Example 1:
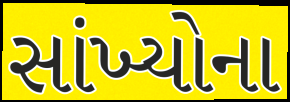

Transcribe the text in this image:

સાંખ્યોના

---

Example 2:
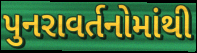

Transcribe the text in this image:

પુનરાવર્તનોમાંથી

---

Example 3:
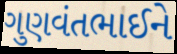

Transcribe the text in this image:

ગુણવંતભાઈને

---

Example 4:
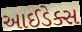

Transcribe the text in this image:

આઈડેક્સ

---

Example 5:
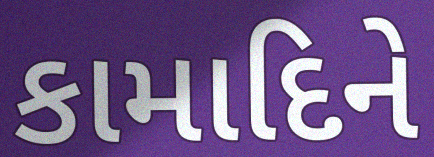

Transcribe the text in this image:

કામાદિને